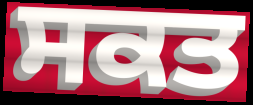
ਸਕਤ